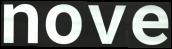
nove